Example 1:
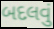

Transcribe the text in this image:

બદલવું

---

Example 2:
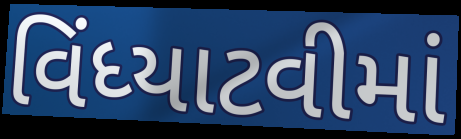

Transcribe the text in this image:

વિંધ્યાટવીમાં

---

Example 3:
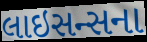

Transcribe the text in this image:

લાઇસન્સના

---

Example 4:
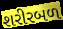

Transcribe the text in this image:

શરીરબળ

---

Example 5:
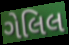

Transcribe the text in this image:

ગેલિલ